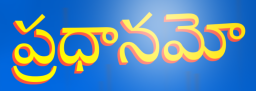
ప్రధానమో